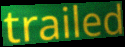
trailed